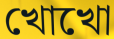
খোখো